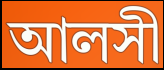
আলসী